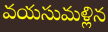
వయసుమళ్లిన